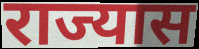
राज्यास